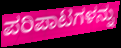
ಪರಿಪಾಟಗಳನ್ನು